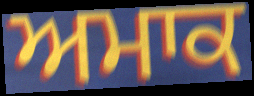
ਅਮਾਕ